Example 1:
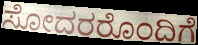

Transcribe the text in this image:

ಸೋದರರೊಂದಿಗೆ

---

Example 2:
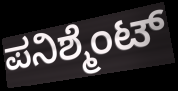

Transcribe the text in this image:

ಪನಿಶ್ಮೆಂಟ್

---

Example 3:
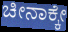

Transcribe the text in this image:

ಚೀನಾಕ್ಕೇ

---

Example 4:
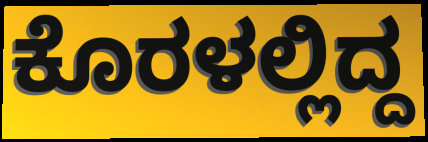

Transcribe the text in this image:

ಕೊರಳಲ್ಲಿದ್ದ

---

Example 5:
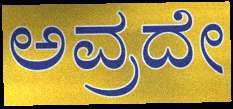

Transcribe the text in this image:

ಅವ್ರದೇ